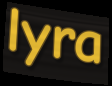
lyra